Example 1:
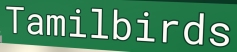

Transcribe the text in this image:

Tamilbirds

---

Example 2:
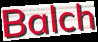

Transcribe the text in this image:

Balch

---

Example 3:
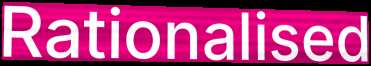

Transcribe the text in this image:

Rationalised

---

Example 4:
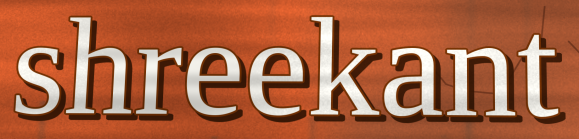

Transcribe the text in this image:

shreekant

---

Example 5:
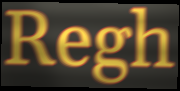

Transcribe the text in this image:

Regh